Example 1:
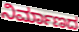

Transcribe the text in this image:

ನಿರ್ಮಾಣದ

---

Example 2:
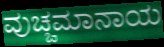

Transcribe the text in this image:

ವುಚ್ಚಮಾನಾಯ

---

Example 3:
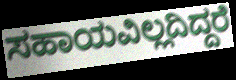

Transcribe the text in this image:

ಸಹಾಯವಿಲ್ಲದಿದ್ದರೆ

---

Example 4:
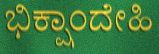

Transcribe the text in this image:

ಭಿಕ್ಷಾಂದೇಹಿ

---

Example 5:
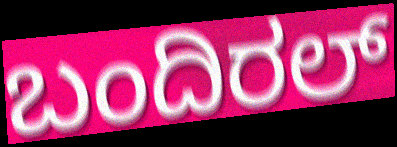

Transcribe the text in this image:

ಬಂದಿರಲ್